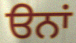
ੳਨਾਂ